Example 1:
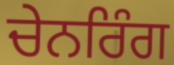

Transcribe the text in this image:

ਚੇਨਰਿੰਗ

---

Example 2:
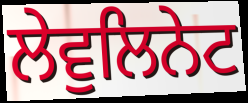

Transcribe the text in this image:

ਲੇਵੁਲਿਨੇਟ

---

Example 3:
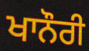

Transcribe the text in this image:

ਖਾਨੌਰੀ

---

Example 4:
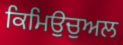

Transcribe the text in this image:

ਕਿਮਿਉਚੁਅਲ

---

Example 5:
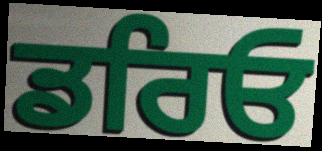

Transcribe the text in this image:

ਡਰਿਓ